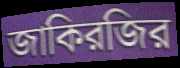
জাকিরজির